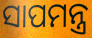
ସାପମନ୍ତ୍ର